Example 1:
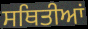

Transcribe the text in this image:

ਸਥਿਤੀਆਂ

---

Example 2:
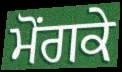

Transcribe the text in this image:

ਮੋਂਗਕੇ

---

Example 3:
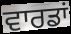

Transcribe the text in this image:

ਵਾਰਡਾਂ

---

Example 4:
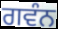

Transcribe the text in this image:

ਗਵੰਨ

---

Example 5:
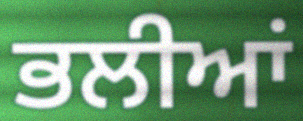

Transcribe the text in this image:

ਭਲੀਆਂ